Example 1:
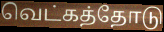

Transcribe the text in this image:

வெட்கத்தோடு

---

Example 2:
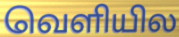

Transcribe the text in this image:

வெளியில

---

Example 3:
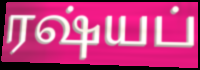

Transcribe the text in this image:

ரஷ்யப்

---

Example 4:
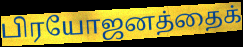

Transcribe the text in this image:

பிரயோஜனத்தைக்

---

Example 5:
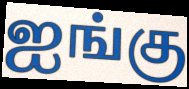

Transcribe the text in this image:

ஐங்கு